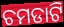
ଚମଡାଟି